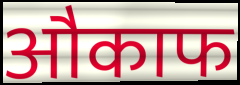
औकाफ